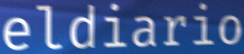
eldiario